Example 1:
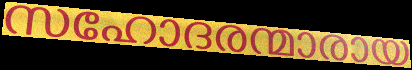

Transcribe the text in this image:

സഹോദരന്മാരായ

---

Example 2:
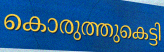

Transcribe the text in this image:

കൊരുത്തുകെട്ടി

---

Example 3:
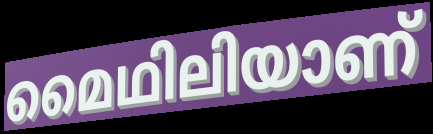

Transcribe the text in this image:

മൈഥിലിയാണ്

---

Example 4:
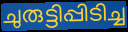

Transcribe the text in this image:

ചുരുട്ടിപ്പിടിച്ച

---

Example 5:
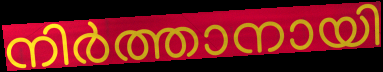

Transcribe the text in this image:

നിർത്താനായി